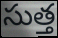
సుత్త